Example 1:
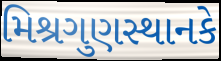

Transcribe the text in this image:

મિશ્રગુણસ્થાનકે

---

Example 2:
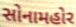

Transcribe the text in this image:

સોનામહોર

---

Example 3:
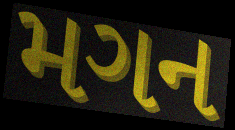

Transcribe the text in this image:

મગન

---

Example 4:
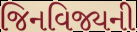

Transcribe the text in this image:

જિનવિજ્યની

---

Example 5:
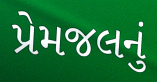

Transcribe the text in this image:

પ્રેમજલનું